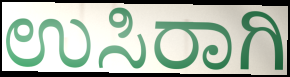
ಉಸಿರಾಗಿ